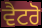
ਵੈਟਰੋ